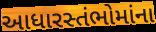
આધારસ્તંભોમાંના